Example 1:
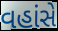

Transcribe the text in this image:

વહાંસે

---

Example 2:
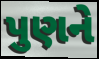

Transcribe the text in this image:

પુણને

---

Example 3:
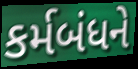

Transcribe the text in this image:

કર્મબંધને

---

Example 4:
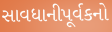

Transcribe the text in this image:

સાવધાનીપૂર્વકનો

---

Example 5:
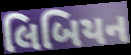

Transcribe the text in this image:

લિબિયન